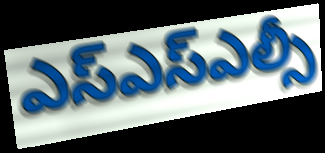
ఎస్ఎస్ఎల్సీ